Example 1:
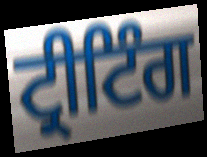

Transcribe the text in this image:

ਟ੍ਰੀਟਿੰਗ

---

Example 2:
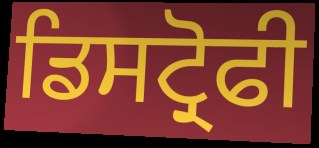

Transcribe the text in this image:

ਡਿਸਟ੍ਰੋਫੀ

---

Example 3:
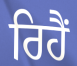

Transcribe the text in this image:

ਰਿਹੈਂ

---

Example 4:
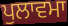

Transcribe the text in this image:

ਪੁਲਾਵਮਾ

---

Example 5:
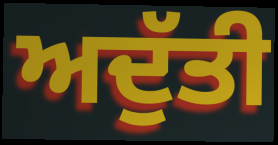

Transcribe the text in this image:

ਅਦੁੱਤੀ